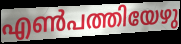
എൺപത്തിയേഴു